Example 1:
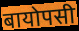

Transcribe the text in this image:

बायोपसी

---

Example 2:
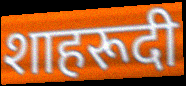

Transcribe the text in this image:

शाहरूदी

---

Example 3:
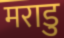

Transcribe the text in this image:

मराडु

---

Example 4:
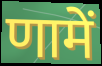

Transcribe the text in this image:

णामें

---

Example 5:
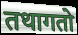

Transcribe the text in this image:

तथागतो